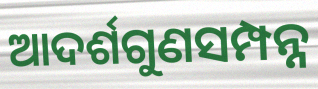
ଆଦର୍ଶଗୁଣସମ୍ପନ୍ନ